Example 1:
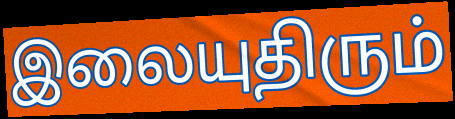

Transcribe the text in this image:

இலையுதிரும்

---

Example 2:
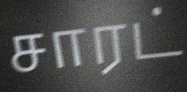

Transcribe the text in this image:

சாரட்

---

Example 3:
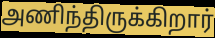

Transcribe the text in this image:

அணிந்திருக்கிறார்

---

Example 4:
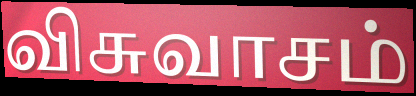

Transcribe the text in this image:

விசுவாசம்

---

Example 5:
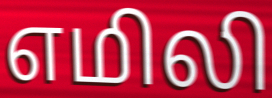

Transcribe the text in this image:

எமிலி